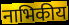
नाभिकीय